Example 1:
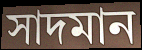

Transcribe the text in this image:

সাদমান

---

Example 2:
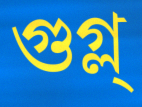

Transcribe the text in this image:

গুগ্ল্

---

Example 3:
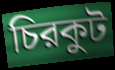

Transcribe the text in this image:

চিরকুট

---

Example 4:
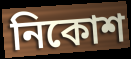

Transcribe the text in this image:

নিকোশ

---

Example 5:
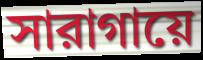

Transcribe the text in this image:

সারাগায়ে